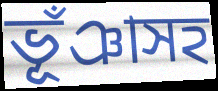
ভূঁঞাসহ